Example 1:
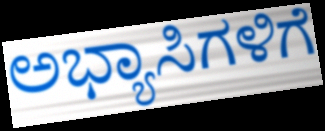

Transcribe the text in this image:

ಅಭ್ಯಾಸಿಗಳಿಗೆ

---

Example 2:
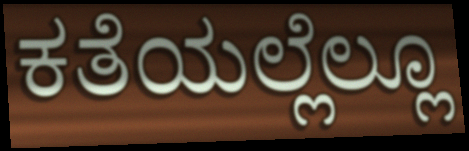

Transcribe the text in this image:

ಕತೆಯಲ್ಲೆಲ್ಲೂ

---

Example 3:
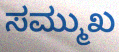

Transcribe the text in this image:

ಸಮ್ಮುಖ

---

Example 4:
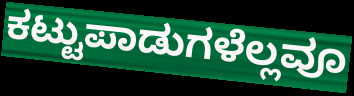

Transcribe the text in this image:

ಕಟ್ಟುಪಾಡುಗಳೆಲ್ಲವೂ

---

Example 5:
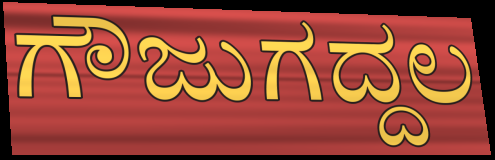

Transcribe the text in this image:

ಗೌಜುಗದ್ದಲ